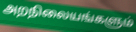
அறநிலையங்களும்